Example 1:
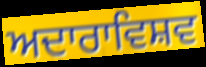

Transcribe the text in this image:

ਅਦਾਰਾਵਿਸ਼ਵ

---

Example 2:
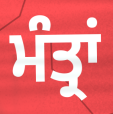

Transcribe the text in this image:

ਮੰਤ੍ਰਾਂ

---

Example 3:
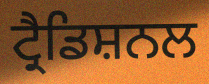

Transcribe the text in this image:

ਟ੍ਰੈਡਿਸ਼ਨਲ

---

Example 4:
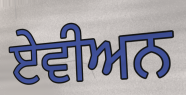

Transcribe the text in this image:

ਏਵੀਅਨ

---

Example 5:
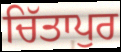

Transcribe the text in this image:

ਚਿੱਤਾਪੁਰ